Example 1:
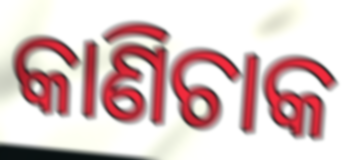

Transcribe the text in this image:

କାଣିଚାକ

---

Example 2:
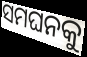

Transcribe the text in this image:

ସମଘନକୁ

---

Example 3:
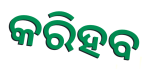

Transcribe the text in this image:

କରିହବ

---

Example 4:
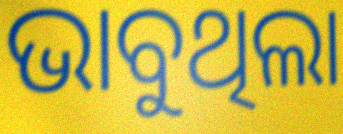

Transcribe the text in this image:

ଭାବୁଥିଲା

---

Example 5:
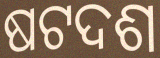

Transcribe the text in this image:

ଷଟଦଶ